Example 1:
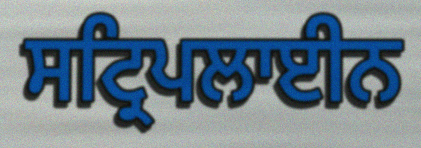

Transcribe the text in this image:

ਸਟ੍ਰਿਪਲਾਈਨ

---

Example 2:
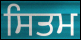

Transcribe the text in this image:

ਸਿਤਮ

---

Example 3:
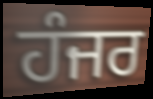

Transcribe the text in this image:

ਹੰਜਰ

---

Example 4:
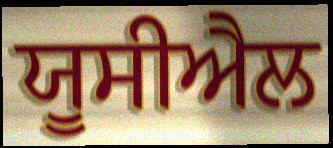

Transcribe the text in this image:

ਯੂਸੀਐਲ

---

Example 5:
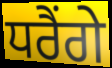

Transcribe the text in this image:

ਧਰੈਂਗੇ